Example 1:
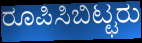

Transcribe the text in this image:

ರೂಪಿಸಿಬಿಟ್ಟರು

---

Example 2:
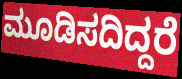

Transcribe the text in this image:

ಮೂಡಿಸದಿದ್ದರೆ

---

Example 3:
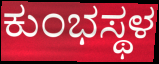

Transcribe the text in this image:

ಕುಂಭಸ್ಥಳ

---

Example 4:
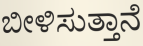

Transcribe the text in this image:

ಬೀಳಿಸುತ್ತಾನೆ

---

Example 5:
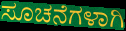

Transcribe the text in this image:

ಸೂಚನೆಗಳಾಗಿ